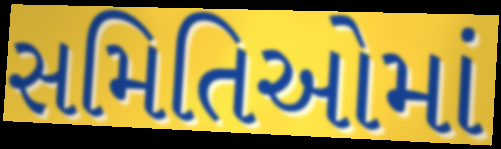
સમિતિઓમાં